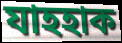
যাহহাক